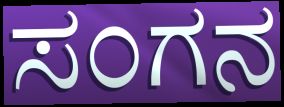
ಸಂಗನ